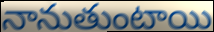
నానుతుంటాయి